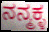
ನನ್ಮಕ್ಳ